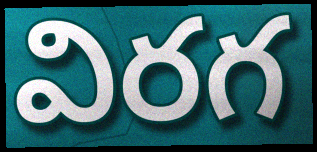
విరగ